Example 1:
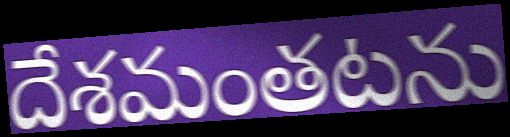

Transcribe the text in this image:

దేశమంతటను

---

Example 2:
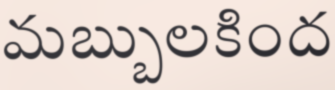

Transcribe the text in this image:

మబ్బులకింద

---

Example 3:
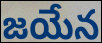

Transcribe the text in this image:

జయేన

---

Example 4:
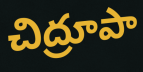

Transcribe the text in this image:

చిద్రూపా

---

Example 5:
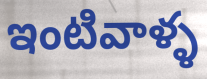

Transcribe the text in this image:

ఇంటివాళ్ళ